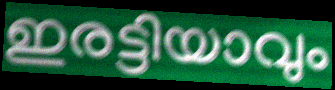
ഇരട്ടിയാവും